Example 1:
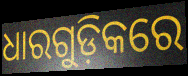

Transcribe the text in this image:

ଧାରଗୁଡ଼ିକରେ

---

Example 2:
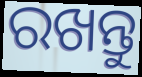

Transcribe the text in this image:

ରଖନ୍ତୁ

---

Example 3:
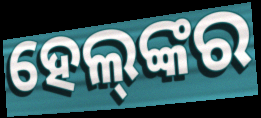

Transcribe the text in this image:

ହେଲ୍‌ଙ୍କର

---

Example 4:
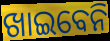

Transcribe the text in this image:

ଖାଇବେନି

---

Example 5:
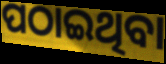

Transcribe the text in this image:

ପଠାଇଥିବା